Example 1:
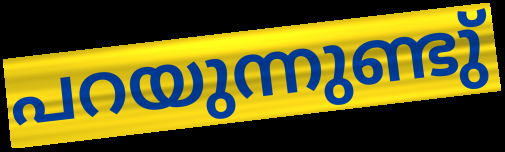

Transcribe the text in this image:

പറയുന്നുണ്ടു്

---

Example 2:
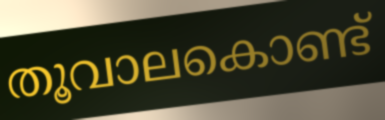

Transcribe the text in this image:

തൂവാലകൊണ്ട്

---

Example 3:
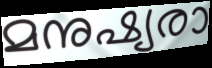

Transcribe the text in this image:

മനുഷ്യരാ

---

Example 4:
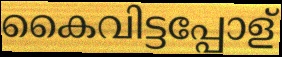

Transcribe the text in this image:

കൈവിട്ടപ്പോള്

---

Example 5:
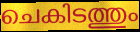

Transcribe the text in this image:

ചെകിടത്തും